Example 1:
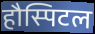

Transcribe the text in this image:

हौस्पिटल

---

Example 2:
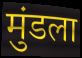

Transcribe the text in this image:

मुंडला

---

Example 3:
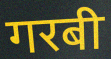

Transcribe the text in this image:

गरबी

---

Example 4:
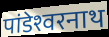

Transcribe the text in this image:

पांडेश्वरनाथ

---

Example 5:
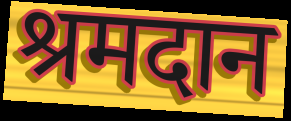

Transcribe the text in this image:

श्रमदान